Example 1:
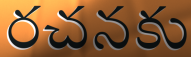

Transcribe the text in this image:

రచనకు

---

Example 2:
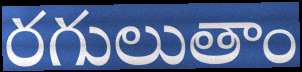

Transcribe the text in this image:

రగులుతాం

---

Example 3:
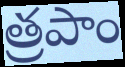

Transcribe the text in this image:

త్రపాం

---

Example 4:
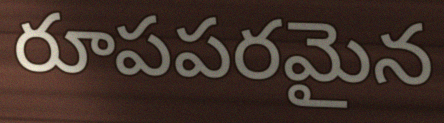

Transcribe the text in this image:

రూపపరమైన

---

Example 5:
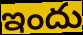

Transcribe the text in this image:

ఇందు